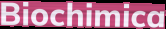
Biochimica